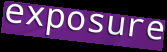
exposure